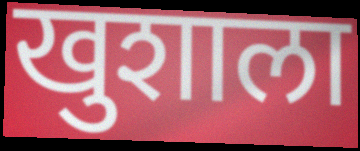
खुशाला